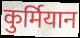
कुर्मियान